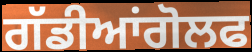
ਗੱਡੀਆਂਗੋਲਫ